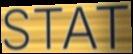
STAT